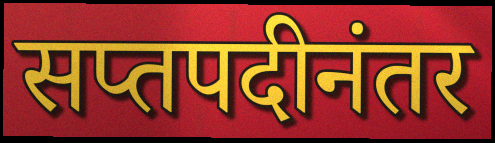
सप्तपदीनंतर